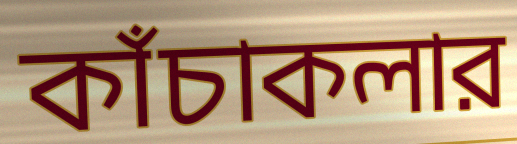
কাঁচাকলার